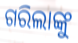
ଗରିଲାଙ୍କୁ